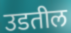
उडतील